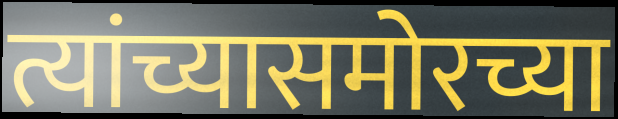
त्यांच्यासमोरच्या